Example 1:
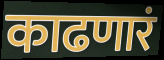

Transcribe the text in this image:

काढणारं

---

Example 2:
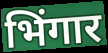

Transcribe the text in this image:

भिंगार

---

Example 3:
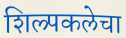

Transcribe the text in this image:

शिल्पकलेचा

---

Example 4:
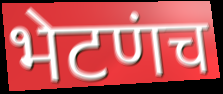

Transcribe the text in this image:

भेटणंच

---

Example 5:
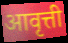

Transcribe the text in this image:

आवृत्ती